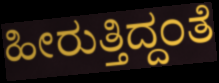
ಹೀರುತ್ತಿದ್ದಂತೆ